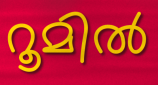
റൂമിൽ